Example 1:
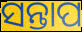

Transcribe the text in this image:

ସନ୍ତାପ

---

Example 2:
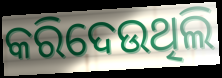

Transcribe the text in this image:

କରିଦେଉଥିଲି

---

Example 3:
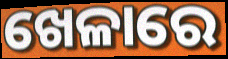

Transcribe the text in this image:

ଖେଳାରେ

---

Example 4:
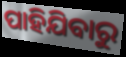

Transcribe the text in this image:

ପାହିଯିବାରୁ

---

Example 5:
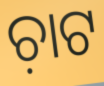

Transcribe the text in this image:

ଚ଼ାଟ